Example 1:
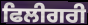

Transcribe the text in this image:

ਫਿਲੀਗਰੀ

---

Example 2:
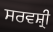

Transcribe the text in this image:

ਸਰਵਸ਼੍ਰੀ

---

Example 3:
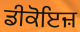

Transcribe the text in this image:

ਡੀਕੋਇਜ਼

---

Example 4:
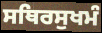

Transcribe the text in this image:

ਸਥਿਰਸੁਖਮੰ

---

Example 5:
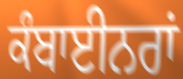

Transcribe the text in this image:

ਕੰਬਾਈਨਰਾਂ